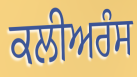
ਕਲੀਅਰੰਸ